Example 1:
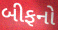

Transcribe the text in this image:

બીફનો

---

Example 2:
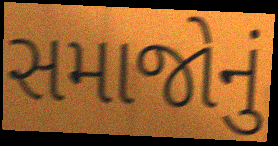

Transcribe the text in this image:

સમાજોનું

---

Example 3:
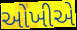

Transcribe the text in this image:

ઓખીએ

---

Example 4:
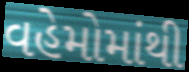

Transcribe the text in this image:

વહેમોમાંથી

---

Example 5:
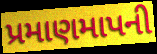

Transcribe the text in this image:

પ્રમાણમાપની